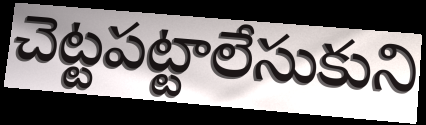
చెట్టపట్టాలేసుకుని